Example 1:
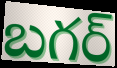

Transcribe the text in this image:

బగర్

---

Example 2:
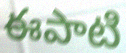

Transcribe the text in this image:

ఈపాటి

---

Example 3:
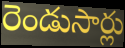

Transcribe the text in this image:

రెండుసార్లు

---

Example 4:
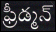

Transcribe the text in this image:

ఫ్రీడ్మన్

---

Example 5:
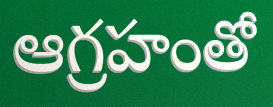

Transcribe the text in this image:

ఆగ్రహంతో